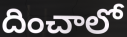
దించాలో